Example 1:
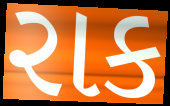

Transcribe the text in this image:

રાક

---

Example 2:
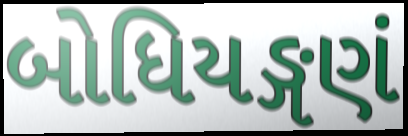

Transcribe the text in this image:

બોધિયઙ્ગણં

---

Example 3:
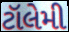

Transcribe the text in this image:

ટૉલેમી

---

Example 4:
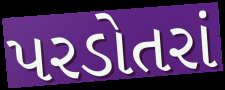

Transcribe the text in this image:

પરડોતરાં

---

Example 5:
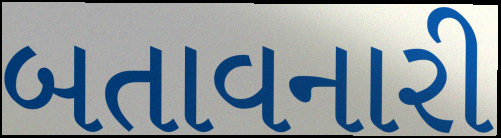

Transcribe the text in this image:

બતાવનારી